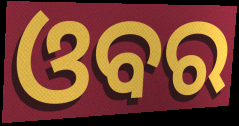
ଓବର